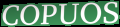
COPUOS